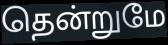
தென்றுமே